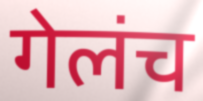
गेलंच